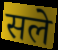
सले